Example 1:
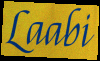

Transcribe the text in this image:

Laabi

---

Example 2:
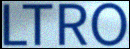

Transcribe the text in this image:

LTRO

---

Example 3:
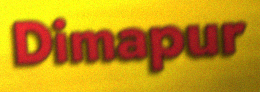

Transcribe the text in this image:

Dimapur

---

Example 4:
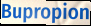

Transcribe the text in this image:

Bupropion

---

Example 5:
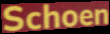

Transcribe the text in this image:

Schoen